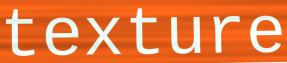
texture